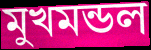
মুখমন্ডল